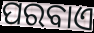
ପରବାଏ